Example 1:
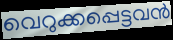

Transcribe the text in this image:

വെറുക്കപ്പെട്ടവൻ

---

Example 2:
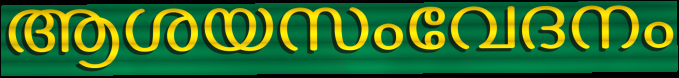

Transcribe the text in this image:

ആശയസംവേദനം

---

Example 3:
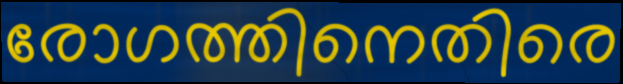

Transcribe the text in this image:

രോഗത്തിനെതിരെ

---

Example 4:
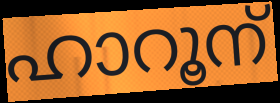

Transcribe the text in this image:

ഹാറൂന്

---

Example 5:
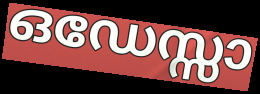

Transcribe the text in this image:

ഒഡേസ്സാ